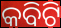
କବିଟି